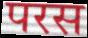
परस